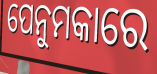
ପେନୁମକାରେ